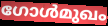
ഗോൾമുഖം